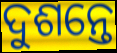
ଦୁଶନ୍ତେ